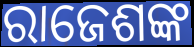
ରାଜେଶଙ୍କ